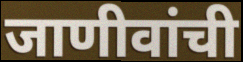
जाणीवांची